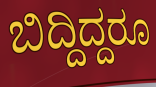
ಬಿದ್ದಿದ್ದರೂ